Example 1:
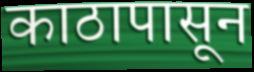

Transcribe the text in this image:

काठापासून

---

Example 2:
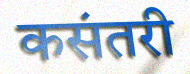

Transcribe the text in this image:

कसंतरी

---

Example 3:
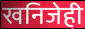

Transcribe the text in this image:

खनिजेही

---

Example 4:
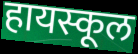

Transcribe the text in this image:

हायस्‍कूल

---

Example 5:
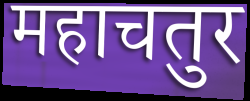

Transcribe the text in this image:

महाचतुर